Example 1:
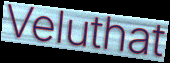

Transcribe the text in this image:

Veluthat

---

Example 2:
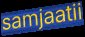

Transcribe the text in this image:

samjaatii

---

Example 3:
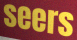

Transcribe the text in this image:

seers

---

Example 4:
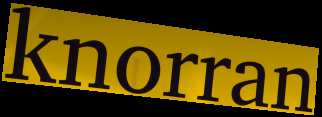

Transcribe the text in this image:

knorran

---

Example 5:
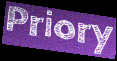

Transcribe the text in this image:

Priory